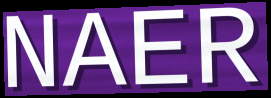
NAER